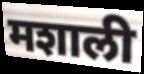
मशाली